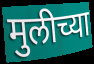
मुलीच्या